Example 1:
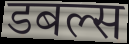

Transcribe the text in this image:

डबल्स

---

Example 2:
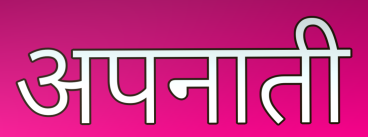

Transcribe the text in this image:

अपनाती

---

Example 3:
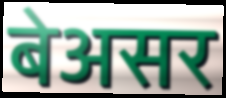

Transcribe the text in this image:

बेअसर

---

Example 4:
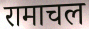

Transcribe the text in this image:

रामाचल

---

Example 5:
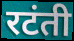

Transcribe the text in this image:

रटंती